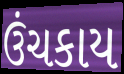
ઉંચકાય